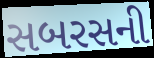
સબરસની